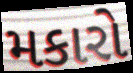
મકારો